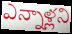
ఎన్నాళ్లని